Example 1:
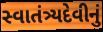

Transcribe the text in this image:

સ્વાતંત્ર્યદેવીનું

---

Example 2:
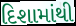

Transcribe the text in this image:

દિશામાંથી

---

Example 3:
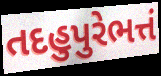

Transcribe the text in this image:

તદહુપુરેભત્તં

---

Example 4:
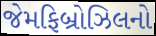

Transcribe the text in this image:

જેમફિબ્રોઝિલનો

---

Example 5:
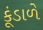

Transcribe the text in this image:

કૂંડાળે